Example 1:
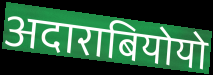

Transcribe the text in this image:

अदाराबियोयो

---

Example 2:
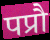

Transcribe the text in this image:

पप्रौ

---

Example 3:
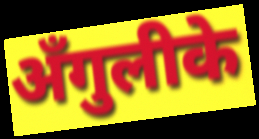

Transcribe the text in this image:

अँगुलीके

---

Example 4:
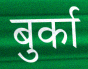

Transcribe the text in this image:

बुर्का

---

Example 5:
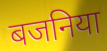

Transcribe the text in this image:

बजनिया